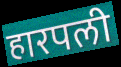
हारपली